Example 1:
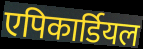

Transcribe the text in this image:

एपिकार्डियल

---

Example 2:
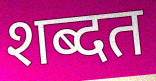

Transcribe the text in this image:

शब्दत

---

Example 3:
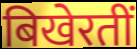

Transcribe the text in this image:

बिखेरतीं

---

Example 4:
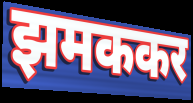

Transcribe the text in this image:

झमककर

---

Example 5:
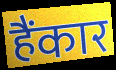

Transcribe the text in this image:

हैंकार